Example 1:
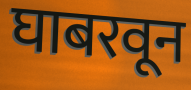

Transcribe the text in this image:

घाबरवून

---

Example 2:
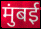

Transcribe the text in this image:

मुंबई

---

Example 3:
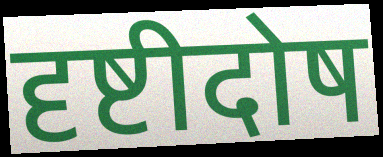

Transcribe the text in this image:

दृष्टीदोष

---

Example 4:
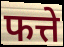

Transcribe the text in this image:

फत्ते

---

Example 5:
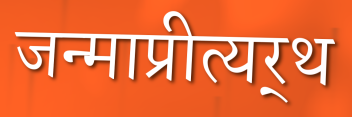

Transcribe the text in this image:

जन्माप्रीत्यर्थ